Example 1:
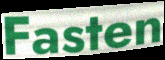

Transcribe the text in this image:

Fasten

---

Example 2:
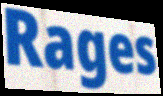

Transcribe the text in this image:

Rages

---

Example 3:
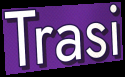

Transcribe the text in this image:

Trasi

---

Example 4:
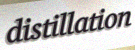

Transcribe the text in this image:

distillation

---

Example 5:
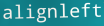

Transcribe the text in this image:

alignleft